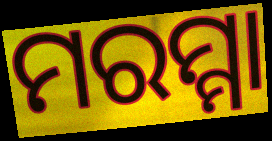
ମରମ୍ମା